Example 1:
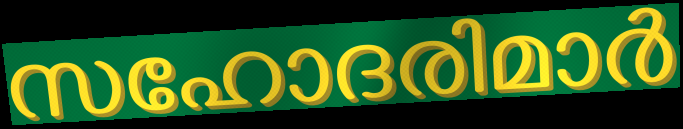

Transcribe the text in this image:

സഹോദരിമാർ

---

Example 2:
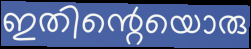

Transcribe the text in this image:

ഇതിന്റെയൊരു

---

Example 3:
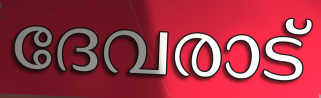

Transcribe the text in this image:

ദേവരാട്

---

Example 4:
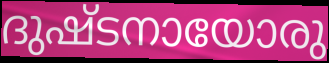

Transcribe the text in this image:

ദുഷ്ടനായോരു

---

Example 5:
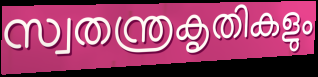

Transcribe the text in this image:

സ്വതന്ത്രകൃതികളും